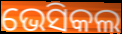
ଭେସିକଲ